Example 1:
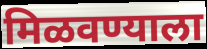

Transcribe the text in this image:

मिळवण्याला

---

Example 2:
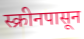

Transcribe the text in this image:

स्क्रीनपासून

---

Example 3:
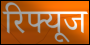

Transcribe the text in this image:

रिफ्यूज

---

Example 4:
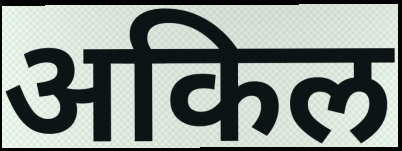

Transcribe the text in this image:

अकिल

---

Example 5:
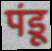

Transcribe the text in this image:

पंडू